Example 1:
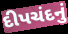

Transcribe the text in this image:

દીપચંદનું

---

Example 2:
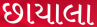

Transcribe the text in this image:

છાયાલા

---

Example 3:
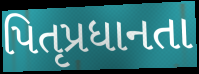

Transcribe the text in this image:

પિતૃપ્રધાનતા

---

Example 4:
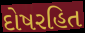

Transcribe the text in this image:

દોષરહિત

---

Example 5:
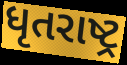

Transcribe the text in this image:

ધૃતરાષ્ટ્ર